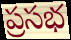
ప్రసభ